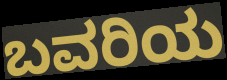
ಬವರಿಯ